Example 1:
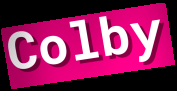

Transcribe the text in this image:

Colby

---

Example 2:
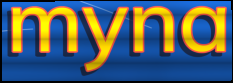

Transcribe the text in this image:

myna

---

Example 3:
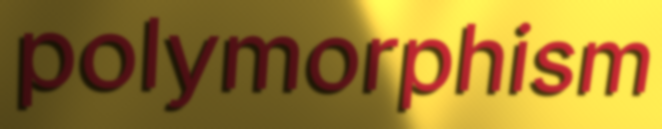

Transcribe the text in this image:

polymorphism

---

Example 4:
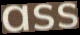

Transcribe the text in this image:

ass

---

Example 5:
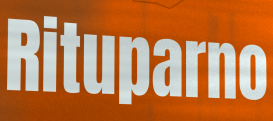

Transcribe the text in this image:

Rituparno